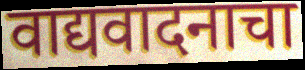
वाद्यवादनाचा